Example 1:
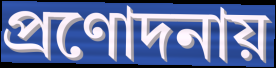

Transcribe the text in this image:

প্রণোদনায়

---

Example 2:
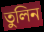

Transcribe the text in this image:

তুলিন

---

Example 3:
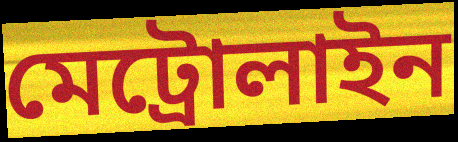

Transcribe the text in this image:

মেট্রোলাইন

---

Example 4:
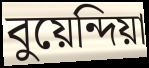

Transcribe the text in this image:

বুয়েন্দিয়া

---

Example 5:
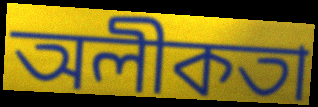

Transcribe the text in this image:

অলীকতা